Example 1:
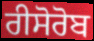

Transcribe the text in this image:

ਰੀਸੋਰੋਬ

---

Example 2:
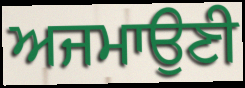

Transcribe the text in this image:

ਅਜਮਾਉਣੀ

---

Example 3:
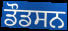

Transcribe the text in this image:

ਡੌਡਸਨ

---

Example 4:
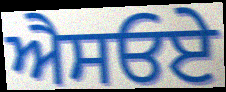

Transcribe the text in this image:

ਐਸਓਏ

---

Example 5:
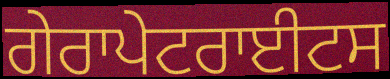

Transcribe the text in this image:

ਗੇਰਾਪੇਟਰਾਈਟਸ